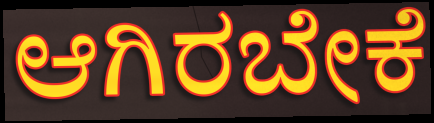
ಆಗಿರಬೇಕೆ